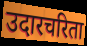
उदारचरिता